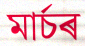
মাৰ্চৰ